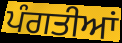
ਪੰਗਤੀਆਂ